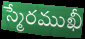
స్మేరముఖీ